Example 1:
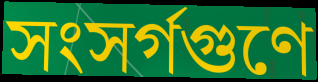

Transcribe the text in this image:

সংসর্গগুণে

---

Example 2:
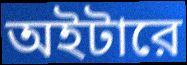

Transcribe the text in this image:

অইটারে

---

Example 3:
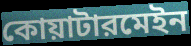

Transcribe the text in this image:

কোয়াটারমেইন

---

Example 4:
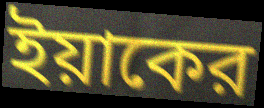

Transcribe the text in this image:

ইয়াকের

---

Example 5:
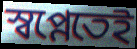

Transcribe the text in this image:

স্বপ্নেতেই